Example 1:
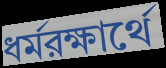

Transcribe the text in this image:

ধর্মরক্ষার্থে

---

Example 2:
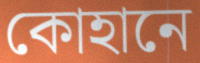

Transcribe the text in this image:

কোহানে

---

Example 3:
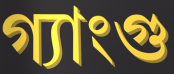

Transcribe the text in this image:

গ্যাংগু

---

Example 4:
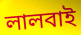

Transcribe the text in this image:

লালবাই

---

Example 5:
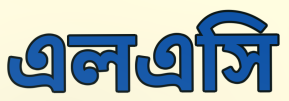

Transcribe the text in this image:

এলএসি